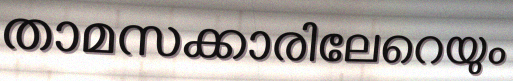
താമസക്കാരിലേറെയും